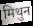
मिथुन